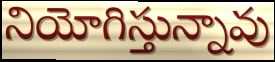
నియోగిస్తున్నావు